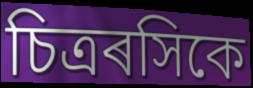
চিত্ৰৰসিকে